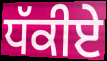
ਧੱਕੀਏ